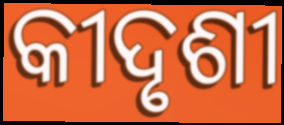
କୀଦୃଶୀ